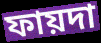
ফায়দা